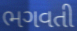
ભગવતી